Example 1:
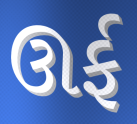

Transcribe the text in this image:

ઊર્ફ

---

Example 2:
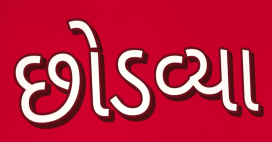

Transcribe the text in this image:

છોડવ્યા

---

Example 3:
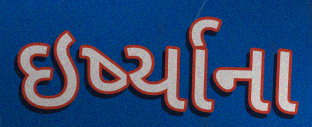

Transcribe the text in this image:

ઇર્ષ્યાના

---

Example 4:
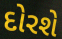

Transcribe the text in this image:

દોરશે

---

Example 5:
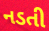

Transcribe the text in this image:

નડતી